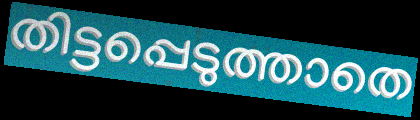
തിട്ടപ്പെടുത്താതെ